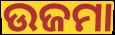
ଉଜମା